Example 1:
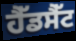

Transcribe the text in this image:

ਹੈੱਡਸੈੱਟ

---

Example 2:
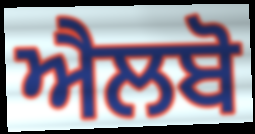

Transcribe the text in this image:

ਐਲਬੋ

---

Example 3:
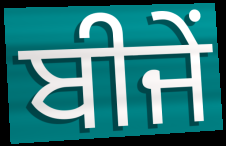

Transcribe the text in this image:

ਬੀਜੇਂ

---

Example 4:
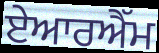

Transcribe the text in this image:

ਏਆਰਐੱਮ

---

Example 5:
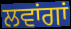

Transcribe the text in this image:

ਲਵਾਂਗਾਂ